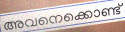
അവനെക്കൊണ്ട്